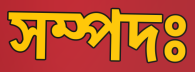
সম্পদঃ